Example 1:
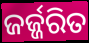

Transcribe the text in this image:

ଜର୍ଜ୍ଜରିତ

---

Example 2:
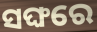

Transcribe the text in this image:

ସଙ୍ଘରେ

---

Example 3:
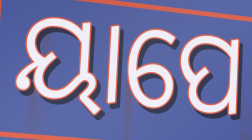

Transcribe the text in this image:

ୟାପେ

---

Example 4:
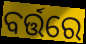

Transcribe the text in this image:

ବର୍ତ୍ତରେ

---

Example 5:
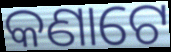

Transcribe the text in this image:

କଣାଟେ